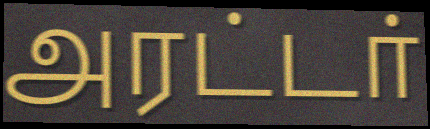
அரட்டர்